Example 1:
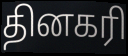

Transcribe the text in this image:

தினகரி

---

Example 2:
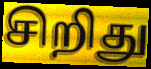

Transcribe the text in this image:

சிறிது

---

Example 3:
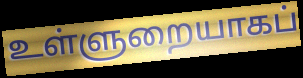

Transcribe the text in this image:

உள்ளுறையாகப்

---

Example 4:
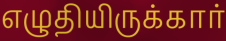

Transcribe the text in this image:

எழுதியிருக்கார்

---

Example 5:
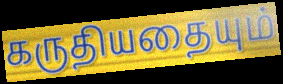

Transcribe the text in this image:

கருதியதையும்